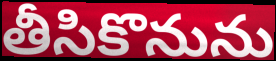
తీసికొనును